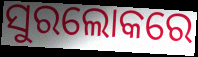
ସୁରଲୋକରେ